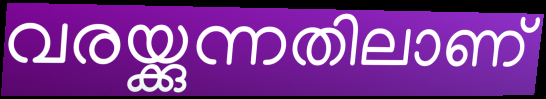
വരയ്ക്കുന്നതിലാണ്